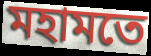
মহামতে